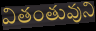
వితంతువుని